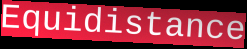
Equidistance